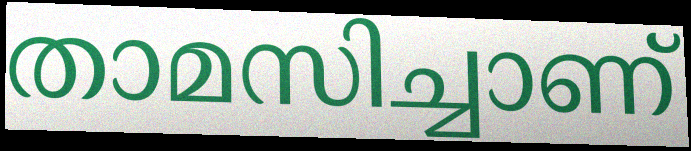
താമസിച്ചാണ്